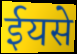
ईयसे